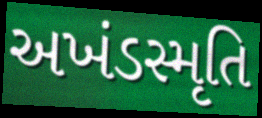
અખંડસ્મૃતિ